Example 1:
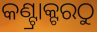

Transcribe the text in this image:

କଣ୍ଟ୍ରାକ୍ଟରଠୁ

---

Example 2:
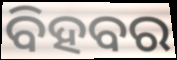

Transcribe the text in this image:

ବିହବର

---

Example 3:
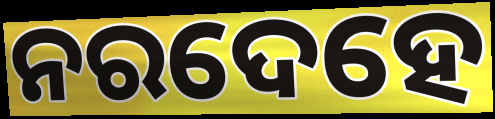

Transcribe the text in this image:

ନରଦେହେ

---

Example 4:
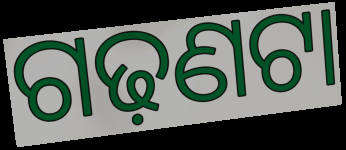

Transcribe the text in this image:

ଗଢ଼ଣଟା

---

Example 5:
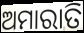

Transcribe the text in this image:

ଅମାରାତି